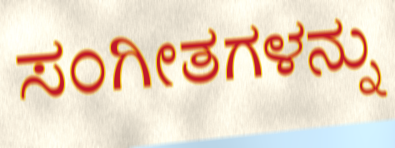
ಸಂಗೀತಗಳನ್ನು